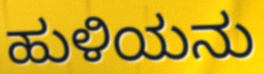
ಹುಳಿಯನು